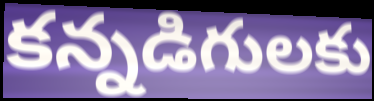
కన్నడిగులకు